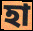
হা